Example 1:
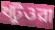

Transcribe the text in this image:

খটুওৱা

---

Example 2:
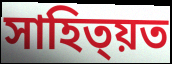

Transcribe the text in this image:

সাহিত্য়ত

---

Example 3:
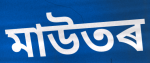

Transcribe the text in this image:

মাউতৰ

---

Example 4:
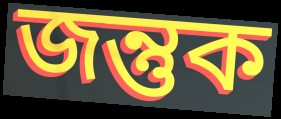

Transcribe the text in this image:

জন্তুক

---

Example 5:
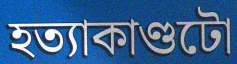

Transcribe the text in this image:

হত্যাকাণ্ডটো